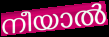
നീയാൽ